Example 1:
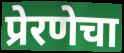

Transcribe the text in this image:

प्रेरणेचा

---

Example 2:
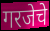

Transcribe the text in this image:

गरजेचे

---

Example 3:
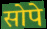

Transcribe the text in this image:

सोपे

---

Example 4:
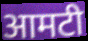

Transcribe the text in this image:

आमटी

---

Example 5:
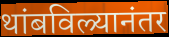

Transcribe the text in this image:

थांबविल्यानंतर